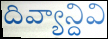
దివ్యాన్దివి